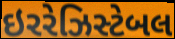
ઇરરેઝિસ્ટેબલ